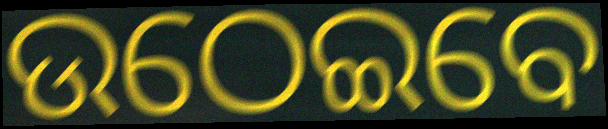
ଉଠେଇବେ